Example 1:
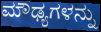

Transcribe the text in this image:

ಮೌಢ್ಯಗಳನ್ನು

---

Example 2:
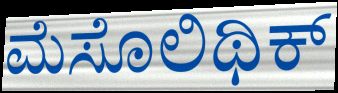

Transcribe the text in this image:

ಮೆಸೊಲಿಥಿಕ್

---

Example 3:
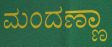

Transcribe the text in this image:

ಮಂದಣ್ಣಾ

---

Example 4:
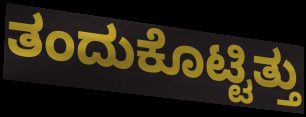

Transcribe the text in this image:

ತಂದುಕೊಟ್ಟಿತ್ತು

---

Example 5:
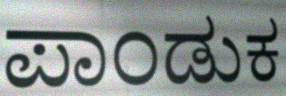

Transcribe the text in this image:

ಪಾಂಡುಕ